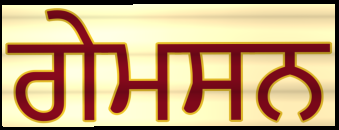
ਗੇਮਸਨ